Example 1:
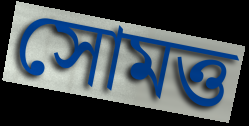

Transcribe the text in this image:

সোমত্ত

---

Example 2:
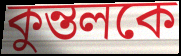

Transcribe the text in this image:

কুন্তলকে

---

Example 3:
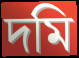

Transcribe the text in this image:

দমি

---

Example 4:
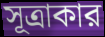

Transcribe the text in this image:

সূত্রাকার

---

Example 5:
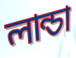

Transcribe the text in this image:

লান্ডা